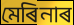
মেৰিনাৰ